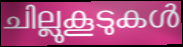
ചില്ലുകൂടുകൾ